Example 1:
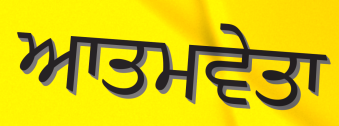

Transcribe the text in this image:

ਆਤਮਵੇਤਾ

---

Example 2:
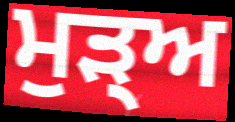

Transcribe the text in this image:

ਮੁਡ਼੍ਅ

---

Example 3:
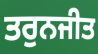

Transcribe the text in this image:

ਤਰੁਨਜੀਤ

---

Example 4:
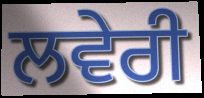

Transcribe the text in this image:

ਲਵੇਰੀ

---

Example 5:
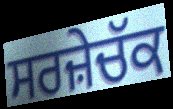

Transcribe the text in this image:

ਸਰਜ਼ੇਚੱਕ